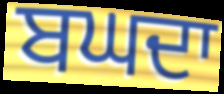
ਬਘਦਾ